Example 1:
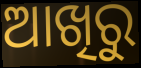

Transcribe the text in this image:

ଆଖିରୁ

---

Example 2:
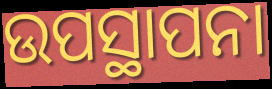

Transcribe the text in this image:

ଉପସ୍ଥାପନା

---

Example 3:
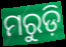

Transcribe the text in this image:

ମରୁଡ଼ି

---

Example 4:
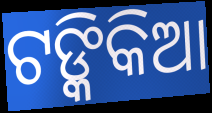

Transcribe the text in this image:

ଟଙ୍କିକିଆ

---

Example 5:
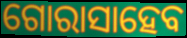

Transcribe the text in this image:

ଗୋରାସାହେବ